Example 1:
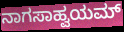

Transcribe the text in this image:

ನಾಗಸಾಹ್ವಯಮ್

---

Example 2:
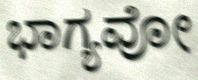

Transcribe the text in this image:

ಭಾಗ್ಯವೋ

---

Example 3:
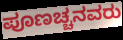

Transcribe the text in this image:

ಪೂಣಚ್ಚನವರು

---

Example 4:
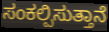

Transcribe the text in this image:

ಸಂಕಲ್ಪಿಸುತ್ತಾನೆ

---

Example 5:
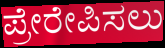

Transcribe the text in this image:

ಪ್ರೇರೇಪಿಸಲು